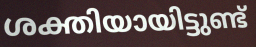
ശക്തിയായിട്ടുണ്ട്